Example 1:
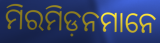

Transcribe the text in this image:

ମିରମିଡ଼ନମାନେ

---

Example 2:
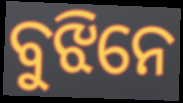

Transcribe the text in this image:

ବୁଝିନେ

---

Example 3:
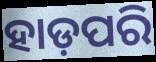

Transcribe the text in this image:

ହାଡ଼ପରି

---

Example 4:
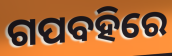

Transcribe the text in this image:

ଗପବହିରେ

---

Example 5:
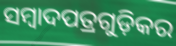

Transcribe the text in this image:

ସମ୍ୱାଦପତ୍ରଗୁଡ଼ିକର